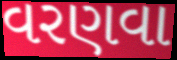
વરણવા